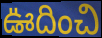
ఊదించి